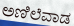
ಅಣಿಲೆವಾಡ